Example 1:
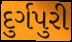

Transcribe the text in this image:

દુર્ગપુરી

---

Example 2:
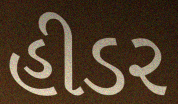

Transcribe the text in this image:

હીડર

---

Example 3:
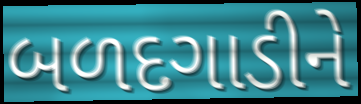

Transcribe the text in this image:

બળદગાડીને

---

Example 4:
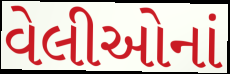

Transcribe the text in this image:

વેલીઓનાં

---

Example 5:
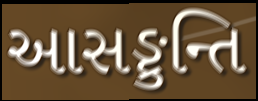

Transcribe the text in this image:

આસઙ્કન્તિ